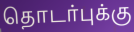
தொடர்புக்கு